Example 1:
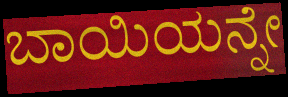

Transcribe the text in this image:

ಬಾಯಿಯನ್ನೇ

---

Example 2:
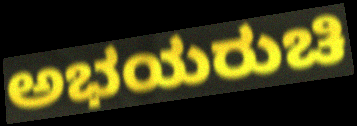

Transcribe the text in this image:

ಅಭಯರುಚಿ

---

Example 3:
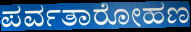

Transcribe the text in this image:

ಪರ್ವತಾರೋಹಣ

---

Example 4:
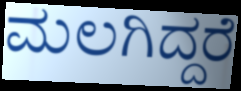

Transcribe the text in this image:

ಮಲಗಿದ್ದರೆ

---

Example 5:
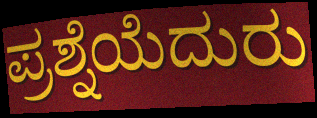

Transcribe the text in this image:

ಪ್ರಶ್ನೆಯೆದುರು